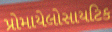
પ્રોમાયેલોસાયટિક